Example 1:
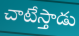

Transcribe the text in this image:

చాటేస్తాడు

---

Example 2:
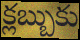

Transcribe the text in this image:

క్లబ్బుకు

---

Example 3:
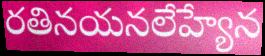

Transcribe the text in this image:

రతినయనలేహ్యేన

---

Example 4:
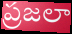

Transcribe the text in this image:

ప్రజలా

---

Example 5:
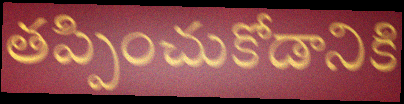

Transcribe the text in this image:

తప్పించుకోడానికి